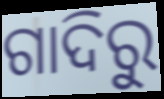
ଗାଦିରୁ